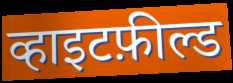
व्हाइटफ़ील्ड